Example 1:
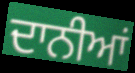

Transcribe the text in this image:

ਦਾਨੀਆਂ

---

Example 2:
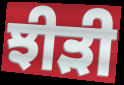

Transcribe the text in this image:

ਝੀੜੀ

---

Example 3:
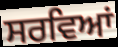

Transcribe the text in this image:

ਸਰਵਿਆਂ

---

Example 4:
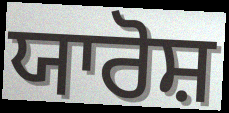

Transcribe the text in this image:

ਯਾਰੋਸ਼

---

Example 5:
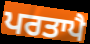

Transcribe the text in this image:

ਪਰਤਾਪੈ